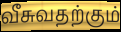
வீசுவதற்கும்